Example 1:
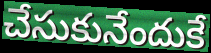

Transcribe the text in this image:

చేసుకునేందుకే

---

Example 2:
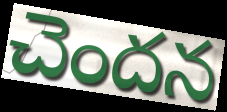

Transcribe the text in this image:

చెందన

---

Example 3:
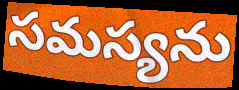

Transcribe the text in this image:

సమస్యను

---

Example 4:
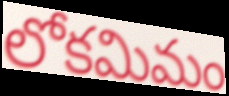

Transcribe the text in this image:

లోకమిమం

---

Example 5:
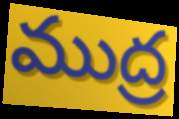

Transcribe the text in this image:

ముద్ర